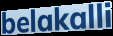
belakalli